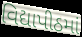
વિદ્યાપીઠમાં